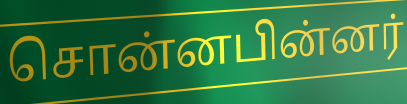
சொன்னபின்னர்